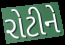
રોટીને